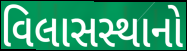
વિલાસસ્થાનો